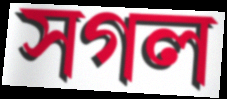
সগল